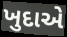
ખુદાએ